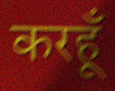
करहूँ